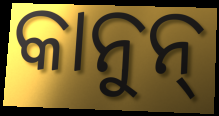
କାନୁନ୍